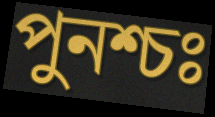
পুনশ্চঃ